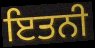
ਇਤਨੀ